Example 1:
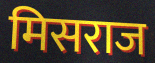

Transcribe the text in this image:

मिसराज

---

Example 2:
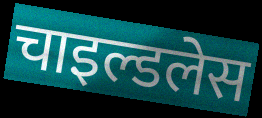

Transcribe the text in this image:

चाइल्डलेस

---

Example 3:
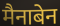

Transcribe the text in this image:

मैनाबेन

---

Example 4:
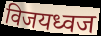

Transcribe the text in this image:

विजयध्वज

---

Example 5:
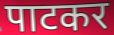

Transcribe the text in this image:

पाटकर